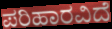
ಪರಿಹಾರವಿದೆ